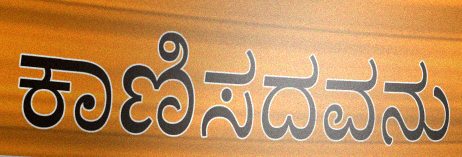
ಕಾಣಿಸದವನು